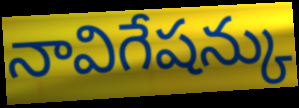
నావిగేషన్కు